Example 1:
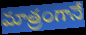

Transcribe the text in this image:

మాత్రంగానే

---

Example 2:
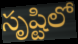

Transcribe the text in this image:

సృష్టిలో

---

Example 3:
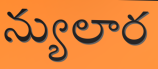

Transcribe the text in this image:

న్యులార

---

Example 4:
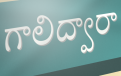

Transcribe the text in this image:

గాలిద్వారా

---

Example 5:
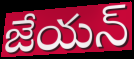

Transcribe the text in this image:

జేయన్